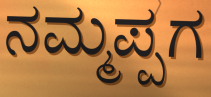
ನಮ್ಮಪ್ಪಗ